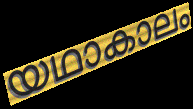
യഥാകാലം